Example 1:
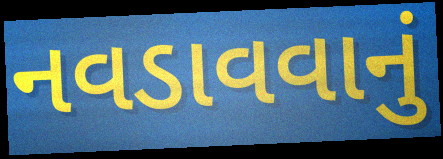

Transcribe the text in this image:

નવડાવવાનું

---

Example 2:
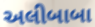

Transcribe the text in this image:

અલીબાબા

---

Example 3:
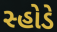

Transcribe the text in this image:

સ્હોડે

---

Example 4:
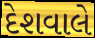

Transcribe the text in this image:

દેશવાલે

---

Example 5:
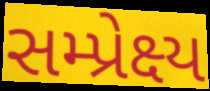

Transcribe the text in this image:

સમ્પ્રેક્ષ્ય